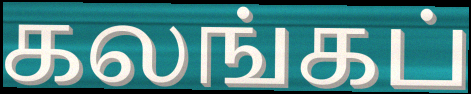
கலங்கப்